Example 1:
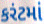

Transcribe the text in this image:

કરંટમાં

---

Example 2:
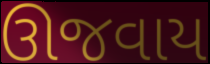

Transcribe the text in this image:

ઊજવાય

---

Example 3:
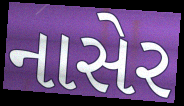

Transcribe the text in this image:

નાસેર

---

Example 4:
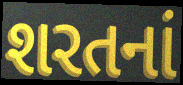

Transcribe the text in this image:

શરતનાં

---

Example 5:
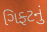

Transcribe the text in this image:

ગિફ્ટનું